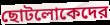
ছোটলোকেদের